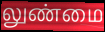
லுண்மை